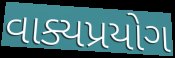
વાક્યપ્રયોગ